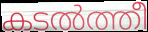
കടൽത്തീ